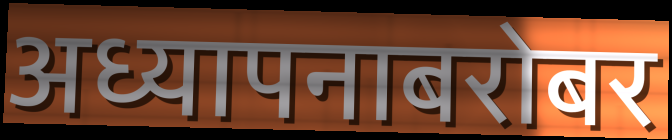
अध्यापनाबरोबर